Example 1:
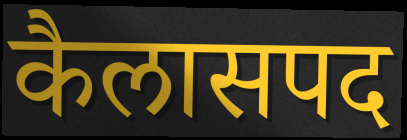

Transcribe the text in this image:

कैलासपद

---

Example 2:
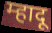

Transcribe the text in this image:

म्हादू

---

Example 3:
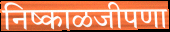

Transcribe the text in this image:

निष्काळजीपणा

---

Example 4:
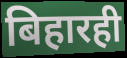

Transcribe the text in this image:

बिहारही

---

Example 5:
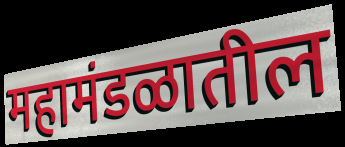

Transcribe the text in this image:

महामंडळातील